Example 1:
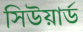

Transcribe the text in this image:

সিউয়ার্ড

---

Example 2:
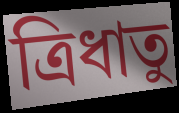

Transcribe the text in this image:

ত্রিধাতু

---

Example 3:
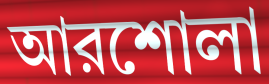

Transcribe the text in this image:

আরশোলা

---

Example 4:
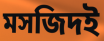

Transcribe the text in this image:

মসজিদই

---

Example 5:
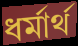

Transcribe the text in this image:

ধর্মার্থ